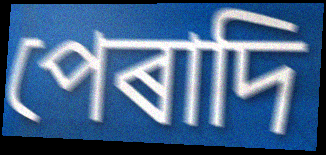
পেৰাদি